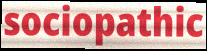
sociopathic